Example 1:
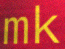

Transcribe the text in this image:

mk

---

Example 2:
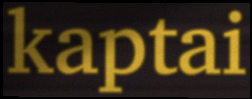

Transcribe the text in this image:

kaptai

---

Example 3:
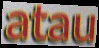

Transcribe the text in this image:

atau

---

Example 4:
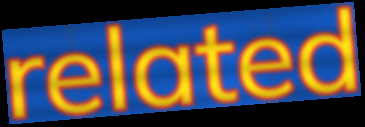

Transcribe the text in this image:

related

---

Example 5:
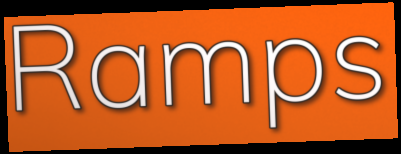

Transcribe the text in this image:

Ramps